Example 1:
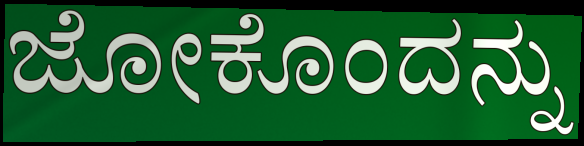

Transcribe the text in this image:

ಜೋಕೊಂದನ್ನು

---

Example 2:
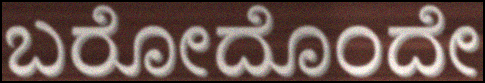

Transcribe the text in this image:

ಬರೋದೊಂದೇ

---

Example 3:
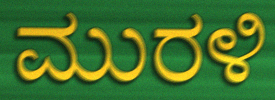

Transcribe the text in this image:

ಮುರಳಿ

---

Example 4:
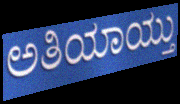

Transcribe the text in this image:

ಅತಿಯಾಯ್ತು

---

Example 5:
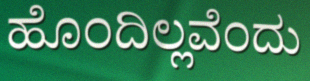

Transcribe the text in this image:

ಹೊಂದಿಲ್ಲವೆಂದು